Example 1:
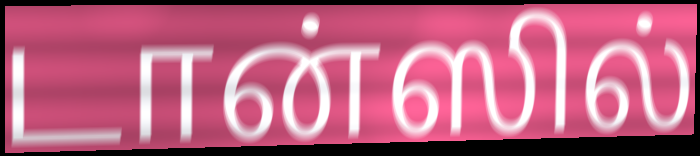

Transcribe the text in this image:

டான்ஸில்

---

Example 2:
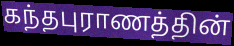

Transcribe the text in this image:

கந்தபுராணத்தின்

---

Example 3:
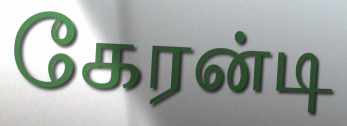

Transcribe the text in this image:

கேரன்டி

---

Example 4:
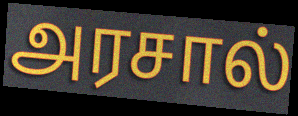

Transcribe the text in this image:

அரசால்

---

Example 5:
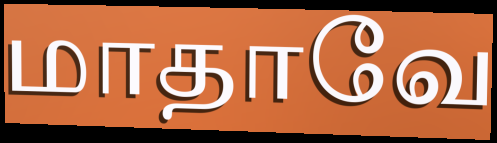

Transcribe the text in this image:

மாதாவே